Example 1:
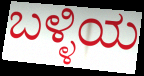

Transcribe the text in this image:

ಬಳ್ಳಿಯ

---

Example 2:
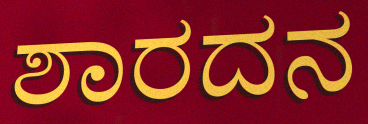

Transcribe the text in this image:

ಶಾರದನ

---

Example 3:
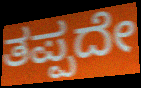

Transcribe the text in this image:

ತಪ್ಪದೇ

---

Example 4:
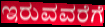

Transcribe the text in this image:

ಇರುವವರೆಗೆ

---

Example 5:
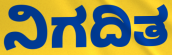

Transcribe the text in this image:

ನಿಗದಿತ